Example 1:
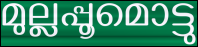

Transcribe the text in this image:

മുല്ലപ്പൂമൊട്ടു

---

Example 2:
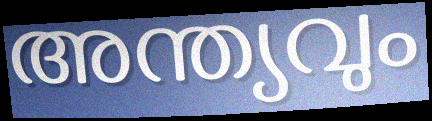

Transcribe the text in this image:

അന്ത്യവും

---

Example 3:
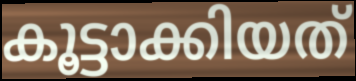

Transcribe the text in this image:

കൂട്ടാക്കിയത്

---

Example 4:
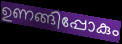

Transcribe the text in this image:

ഉണങ്ങിപ്പോകും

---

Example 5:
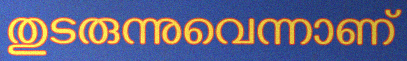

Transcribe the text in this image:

തുടരുന്നുവെന്നാണ്